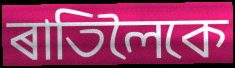
ৰাতিলৈকে